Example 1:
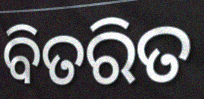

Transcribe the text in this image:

ବିତରିତ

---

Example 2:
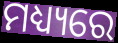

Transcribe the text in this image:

ମଧ୍ୟ୍ୟରେ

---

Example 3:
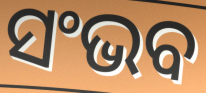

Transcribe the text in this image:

ସଂଭବ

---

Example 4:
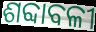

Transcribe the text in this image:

ଶବ୍ଦାବଳୀ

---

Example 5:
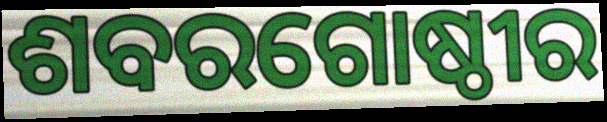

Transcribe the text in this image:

ଶବରଗୋଷ୍ଠୀର